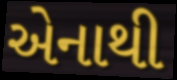
એનાથી